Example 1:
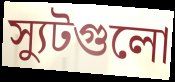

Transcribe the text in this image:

স্যুটগুলো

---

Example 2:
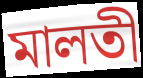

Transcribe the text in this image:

মালতী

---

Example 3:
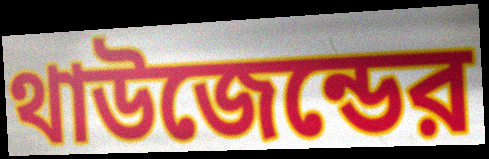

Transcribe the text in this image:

থাউজেন্ডের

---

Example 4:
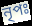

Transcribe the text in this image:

নৃপঃ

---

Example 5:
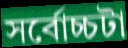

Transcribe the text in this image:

সর্বোচ্চটা